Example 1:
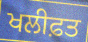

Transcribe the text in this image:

ਖਲੀਫ਼ਤ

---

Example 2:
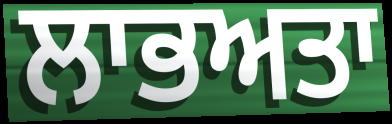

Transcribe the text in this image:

ਲਾਭਅਤਾ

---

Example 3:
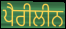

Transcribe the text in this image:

ਪੈਰੀਲੀਨ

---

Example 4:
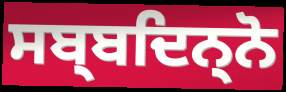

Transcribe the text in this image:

ਸਬ੍ਬਦਿਨ੍ਨੋ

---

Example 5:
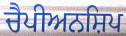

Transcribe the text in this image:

ਚੈਪੀਅਨਸ਼ਿਪ